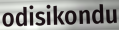
odisikondu